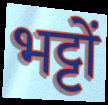
भट्टों